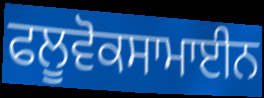
ਫਲੂਵੋਕਸਾਮਾਈਨ